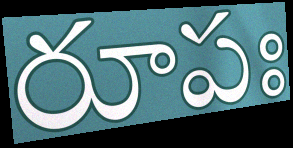
రూపః